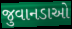
જુવાનડાઓ